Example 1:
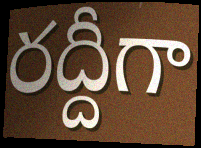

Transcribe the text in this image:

రద్దీగా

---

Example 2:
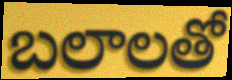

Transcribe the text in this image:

బలాలతో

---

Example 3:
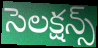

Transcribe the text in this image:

సెలక్షన్స్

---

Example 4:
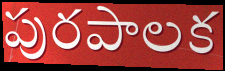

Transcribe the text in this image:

పురపాలక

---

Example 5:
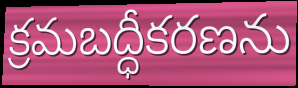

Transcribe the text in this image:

క్రమబద్ధీకరణను